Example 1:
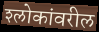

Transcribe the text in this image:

श्लोकांवरील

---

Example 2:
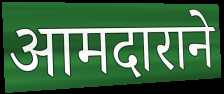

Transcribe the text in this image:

आमदाराने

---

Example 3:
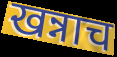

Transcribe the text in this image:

खन्नाच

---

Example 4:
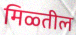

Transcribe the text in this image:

मिळ्तील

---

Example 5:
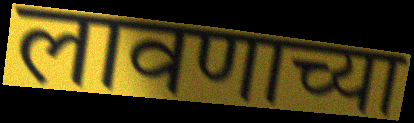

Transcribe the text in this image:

लावणाच्या